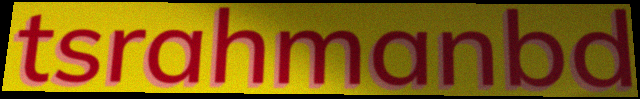
tsrahmanbd